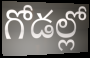
గోడల్లో